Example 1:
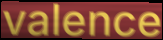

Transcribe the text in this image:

valence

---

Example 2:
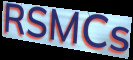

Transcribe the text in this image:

RSMCs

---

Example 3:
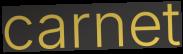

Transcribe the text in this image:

carnet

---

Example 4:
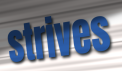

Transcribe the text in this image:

strives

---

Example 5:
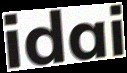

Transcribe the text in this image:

idai